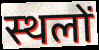
स्थलों